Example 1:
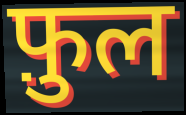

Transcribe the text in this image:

फ़ुल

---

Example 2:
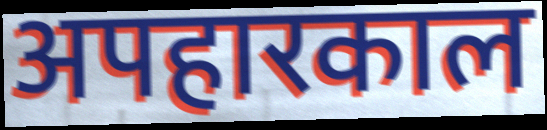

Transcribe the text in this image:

अपहारकाल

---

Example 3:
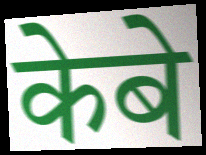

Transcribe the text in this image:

केबे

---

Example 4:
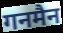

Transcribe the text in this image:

गनमैन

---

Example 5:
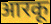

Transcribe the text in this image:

आरकू